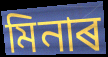
মিনাৰ